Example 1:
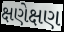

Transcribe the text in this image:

ક્ષણેક્ષણ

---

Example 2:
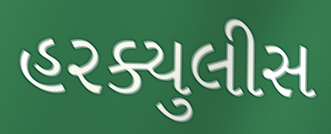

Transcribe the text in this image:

હરક્યુલીસ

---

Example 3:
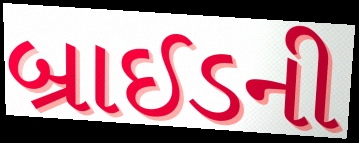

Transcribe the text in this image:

બ્રાઈડની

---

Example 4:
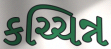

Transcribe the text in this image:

કચ્ચિન્ન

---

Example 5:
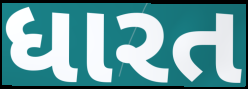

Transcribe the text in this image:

ધારત